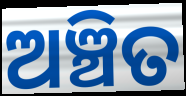
ଅଞ୍ଚିତ